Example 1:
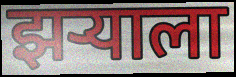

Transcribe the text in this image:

झर्‍याला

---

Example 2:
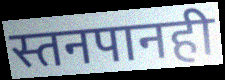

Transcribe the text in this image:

स्तनपानही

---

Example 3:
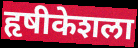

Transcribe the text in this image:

हृषीकेशला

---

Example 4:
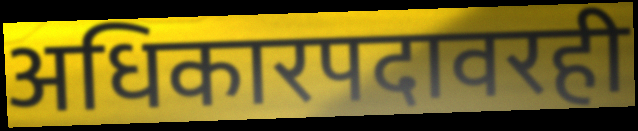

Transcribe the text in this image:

अधिकारपदावरही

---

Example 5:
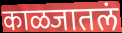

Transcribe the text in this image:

काळजातलं